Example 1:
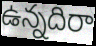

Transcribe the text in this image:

ఉన్నదిరా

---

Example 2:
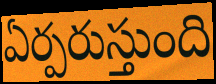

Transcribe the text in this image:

ఏర్పరుస్తుంది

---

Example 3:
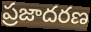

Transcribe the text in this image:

ప్రజాదరణ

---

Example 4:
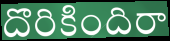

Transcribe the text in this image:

దొరికిందిరా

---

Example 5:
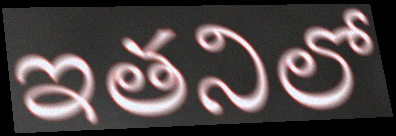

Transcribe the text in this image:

ఇతనిలో